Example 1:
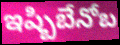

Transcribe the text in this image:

ఇష్బిబేనోబ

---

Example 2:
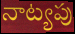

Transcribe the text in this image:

నాట్యపు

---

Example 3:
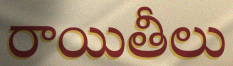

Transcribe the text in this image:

రాయితీలు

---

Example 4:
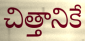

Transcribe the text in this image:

చిత్తానికే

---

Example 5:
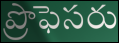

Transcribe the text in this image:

ప్రొఫెసరు